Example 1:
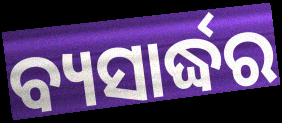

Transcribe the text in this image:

ବ୍ୟସାର୍ଦ୍ଧର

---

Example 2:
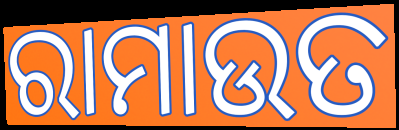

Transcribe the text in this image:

ରାମାଉତ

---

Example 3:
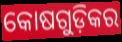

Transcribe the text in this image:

କୋଷଗୁଡ଼ିକର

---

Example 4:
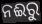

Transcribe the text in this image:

ନଈରୁ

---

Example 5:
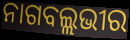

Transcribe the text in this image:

ନାଗବଲ୍ଲଭୀର